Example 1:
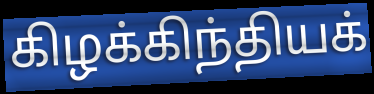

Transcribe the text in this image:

கிழக்கிந்தியக்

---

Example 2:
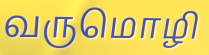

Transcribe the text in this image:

வருமொழி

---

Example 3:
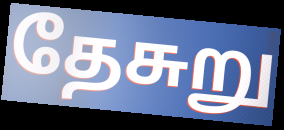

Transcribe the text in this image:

தேசுறு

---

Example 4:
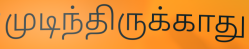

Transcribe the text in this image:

முடிந்திருக்காது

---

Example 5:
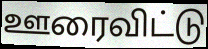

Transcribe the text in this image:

ஊரைவிட்டு